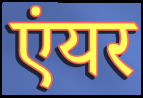
एंयर